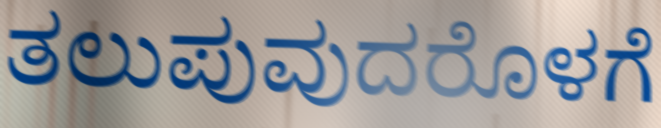
ತಲುಪುವುದರೊಳಗೆ